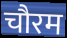
चौरम